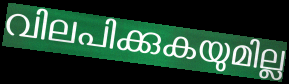
വിലപിക്കുകയുമില്ല